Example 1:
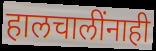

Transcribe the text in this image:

हालचालींनाही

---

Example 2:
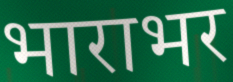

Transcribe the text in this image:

भाराभर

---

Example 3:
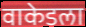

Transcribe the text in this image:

वाकेडला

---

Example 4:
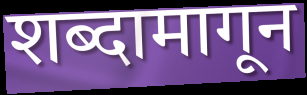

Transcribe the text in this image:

शब्दामागून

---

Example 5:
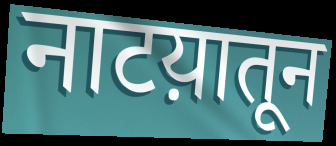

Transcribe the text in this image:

नाटय़ातून